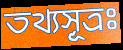
তথ্যসূত্রঃ